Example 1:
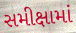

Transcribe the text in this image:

સમીક્ષામાં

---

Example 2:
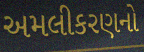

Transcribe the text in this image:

અમલીકરણનો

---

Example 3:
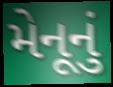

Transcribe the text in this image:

મેનૂનું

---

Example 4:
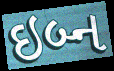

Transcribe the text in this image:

ઇબ્ન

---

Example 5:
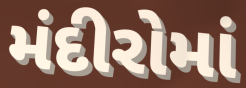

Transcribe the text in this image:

મંદીરોમાં